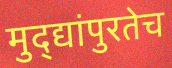
मुद्द्यांपुरतेच